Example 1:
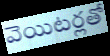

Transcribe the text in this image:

వెయిటర్లతో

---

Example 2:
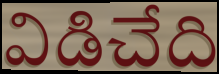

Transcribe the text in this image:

విడిచేది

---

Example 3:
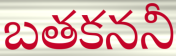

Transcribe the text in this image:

బతకననీ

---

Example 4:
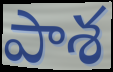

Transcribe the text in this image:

పాశ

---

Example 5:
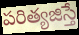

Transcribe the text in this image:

పరిత్యజిస్తే